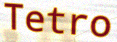
Tetro